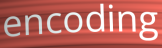
encoding